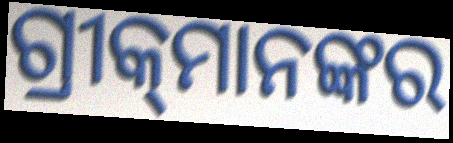
ଗ୍ରୀକ୍‌ମାନଙ୍କର